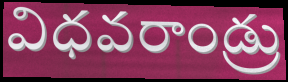
విధవరాండ్రు